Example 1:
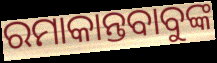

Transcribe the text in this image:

ରମାକାନ୍ତବାବୁଙ୍କ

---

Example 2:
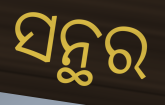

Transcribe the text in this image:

ସନ୍ଥର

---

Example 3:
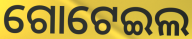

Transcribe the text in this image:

ଗୋଟେଇଲ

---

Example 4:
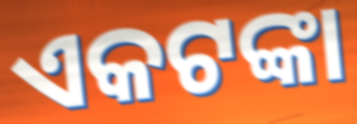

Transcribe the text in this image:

ଏକଟଙ୍କା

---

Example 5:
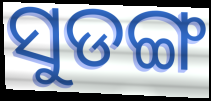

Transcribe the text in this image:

ସୁଡଙ୍ଗ